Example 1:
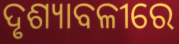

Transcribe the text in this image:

ଦୃଶ୍ୟାବଳୀରେ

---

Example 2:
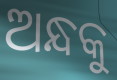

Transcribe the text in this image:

ଅନ୍ଧକୁ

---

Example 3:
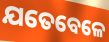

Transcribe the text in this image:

ଯତେବେଳେ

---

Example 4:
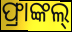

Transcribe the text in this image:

ଫ୍ରାଙ୍କଲ୍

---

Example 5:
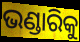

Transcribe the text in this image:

ଭଣ୍ଡାରିକୁ